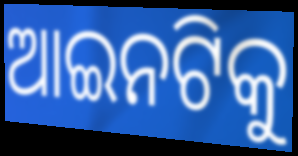
ଆଇନଟିକୁ